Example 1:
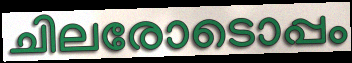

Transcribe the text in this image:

ചിലരോടൊപ്പം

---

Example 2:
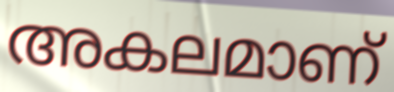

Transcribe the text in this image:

അകലമാണ്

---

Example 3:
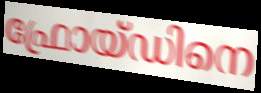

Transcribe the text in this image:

ഫ്രോയ്ഡിനെ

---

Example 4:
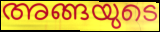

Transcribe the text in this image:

അങ്ങയുടെ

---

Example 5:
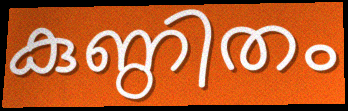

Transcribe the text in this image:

കുണ്ഠിതം